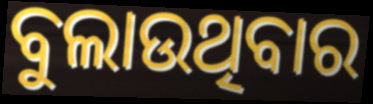
ବୁଲାଉଥିବାର